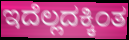
ಇದೆಲ್ಲದಕ್ಕಿಂತ